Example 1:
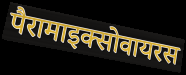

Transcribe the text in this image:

पैरामाइक्सोवायरस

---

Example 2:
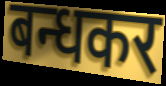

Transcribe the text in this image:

बन्धकर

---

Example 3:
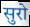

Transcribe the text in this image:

सुरो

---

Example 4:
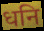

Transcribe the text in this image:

धनि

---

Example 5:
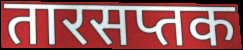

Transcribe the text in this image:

तारसप्तक